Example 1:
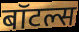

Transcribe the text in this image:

बॉटल्स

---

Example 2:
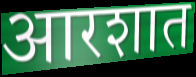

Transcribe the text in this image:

आरशात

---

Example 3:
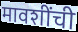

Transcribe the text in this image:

मावशींची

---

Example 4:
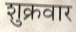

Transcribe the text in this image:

शुक्रवार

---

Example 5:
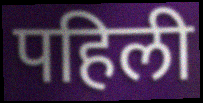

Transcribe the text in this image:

पहिली